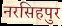
नरसिहपुर